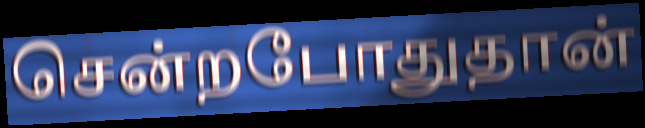
சென்றபோதுதான்